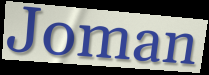
Joman